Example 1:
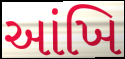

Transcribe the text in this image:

આંખિ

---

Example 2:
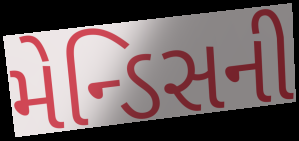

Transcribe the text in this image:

મેન્ડિસની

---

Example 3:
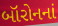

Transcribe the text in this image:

બૉરોનનાં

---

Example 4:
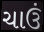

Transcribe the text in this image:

ચાઉં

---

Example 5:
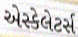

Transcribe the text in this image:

એસ્કેલેટર્સ